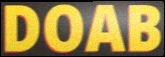
DOAB